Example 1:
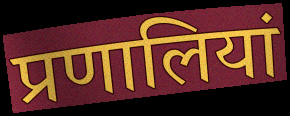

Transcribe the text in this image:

प्रणालियां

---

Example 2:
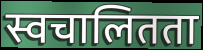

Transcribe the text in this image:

स्वचालितता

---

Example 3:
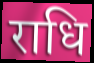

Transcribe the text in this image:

राधि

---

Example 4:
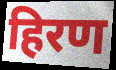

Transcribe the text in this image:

हिरण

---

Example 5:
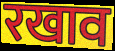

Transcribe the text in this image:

रखाव